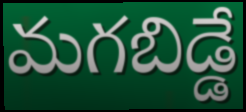
మగబిడ్డే